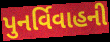
પુનર્વિવાહની